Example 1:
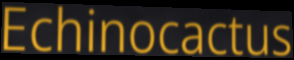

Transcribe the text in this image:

Echinocactus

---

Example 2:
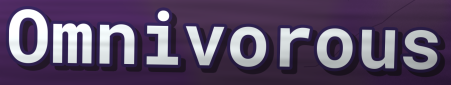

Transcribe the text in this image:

Omnivorous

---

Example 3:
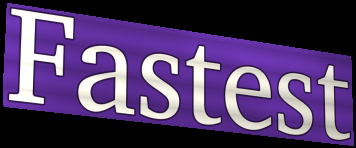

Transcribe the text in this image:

Fastest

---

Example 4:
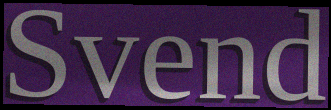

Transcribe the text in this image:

Svend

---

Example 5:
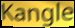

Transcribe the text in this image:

Kangle